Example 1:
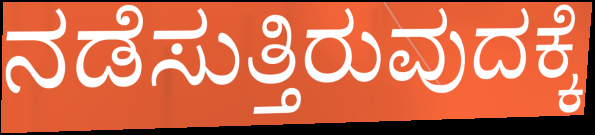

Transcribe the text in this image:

ನಡೆಸುತ್ತಿರುವುದಕ್ಕೆ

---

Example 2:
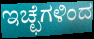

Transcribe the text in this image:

ಇಚ್ಛೆಗಳಿಂದ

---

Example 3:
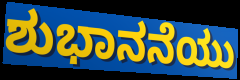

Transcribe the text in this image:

ಶುಭಾನನೆಯು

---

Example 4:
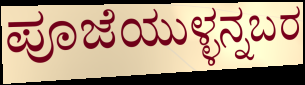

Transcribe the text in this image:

ಪೂಜೆಯುಳ್ಳನ್ನಬರ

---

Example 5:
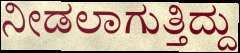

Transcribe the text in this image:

ನೀಡಲಾಗುತ್ತಿದ್ದು